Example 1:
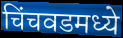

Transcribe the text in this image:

चिंचवडमध्ये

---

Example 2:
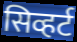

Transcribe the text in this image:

सिव्हर्ट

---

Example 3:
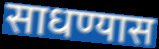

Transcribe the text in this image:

साधण्यास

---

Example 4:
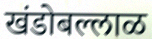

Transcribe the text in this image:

खंडोबल्लाळ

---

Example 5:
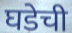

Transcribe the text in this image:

घडेची